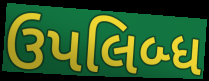
ઉપલિબ્ધ